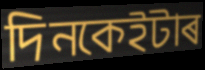
দিনকেইটাৰ